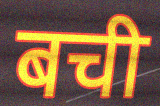
बची